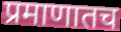
प्रमाणातच